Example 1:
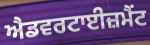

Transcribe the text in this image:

ਐਡਵਰਟਾਈਜ਼ਮੈਂਟ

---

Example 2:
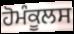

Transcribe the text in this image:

ਹੋਮੰਕੂਲਸ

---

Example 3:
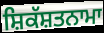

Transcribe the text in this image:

ਸ਼ਿਕੱਸ਼ਤਨਾਮਾ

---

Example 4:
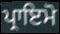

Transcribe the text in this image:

ਪ੍ਰਾਇਮੋ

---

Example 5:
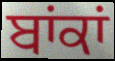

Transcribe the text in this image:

ਬਾਂਕਾਂ